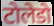
टोलेडो